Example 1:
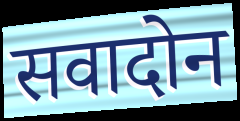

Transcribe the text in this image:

सवादोन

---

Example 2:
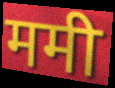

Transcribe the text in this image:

ममी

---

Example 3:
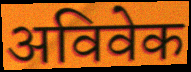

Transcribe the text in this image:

अविवेक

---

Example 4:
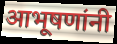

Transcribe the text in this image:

आभूषणांनी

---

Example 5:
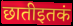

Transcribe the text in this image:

छातीइतकं